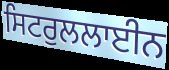
ਸਿਟਰੁਲਲਾਈਨ